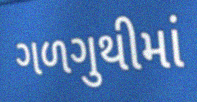
ગળગુથીમાં